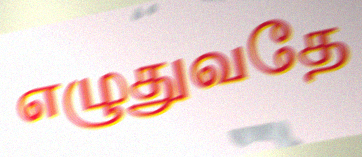
எழுதுவதே